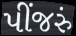
પીંજરું